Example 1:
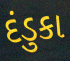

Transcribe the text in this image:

દંડુકા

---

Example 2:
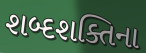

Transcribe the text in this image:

શબ્દશક્તિના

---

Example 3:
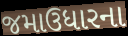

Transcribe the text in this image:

જમાઉધારના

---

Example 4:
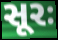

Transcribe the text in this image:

સૂરઃ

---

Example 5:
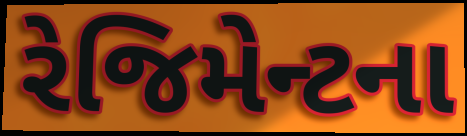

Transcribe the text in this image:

રેજિમેન્ટના